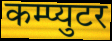
कम्प्युटर